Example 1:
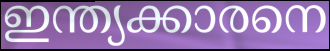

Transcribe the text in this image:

ഇന്ത്യക്കാരനെ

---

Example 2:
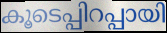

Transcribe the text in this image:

കൂടെപ്പിറപ്പായി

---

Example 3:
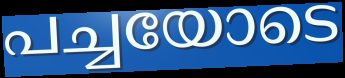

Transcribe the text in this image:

പച്ചയോടെ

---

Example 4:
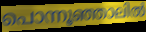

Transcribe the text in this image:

പൊന്നൂഞ്ഞാലിൽ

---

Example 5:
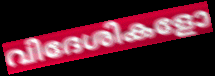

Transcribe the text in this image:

വിദേശികളോ